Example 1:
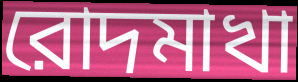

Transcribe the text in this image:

রোদমাখা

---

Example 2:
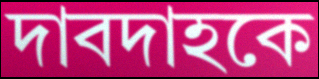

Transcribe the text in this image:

দাবদাহকে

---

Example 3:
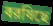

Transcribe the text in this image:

বরষিছে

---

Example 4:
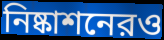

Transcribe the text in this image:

নিষ্কাশনেরও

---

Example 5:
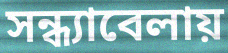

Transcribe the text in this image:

সন্ধ্যাবেলায়